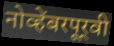
नोव्हेंबरपूर्वी